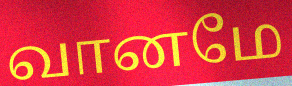
வானமே